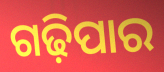
ଗଢ଼ିପାର